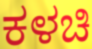
ಕಳಚಿ